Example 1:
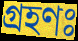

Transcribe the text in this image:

গ্রহণঃ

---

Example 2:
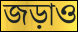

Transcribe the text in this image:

জড়াও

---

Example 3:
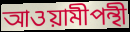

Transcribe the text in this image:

আওয়ামীপন্থী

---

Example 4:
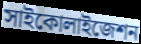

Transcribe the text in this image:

সাইকোলাইজেশন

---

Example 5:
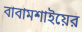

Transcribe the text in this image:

বাবামশাইয়ের